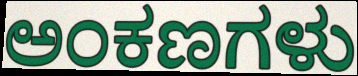
ಅಂಕಣಗಳು